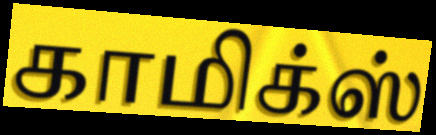
காமிக்ஸ்